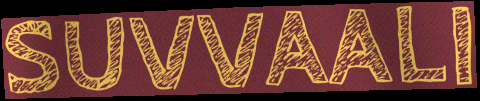
SUVVAALI